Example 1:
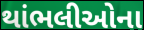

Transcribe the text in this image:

થાંભલીઓના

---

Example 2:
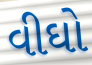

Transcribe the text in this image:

વીઘો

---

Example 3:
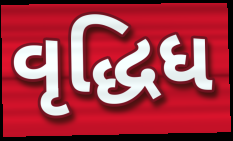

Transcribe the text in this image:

વૃદ્ધિધ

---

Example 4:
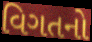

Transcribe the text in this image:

વિગતનો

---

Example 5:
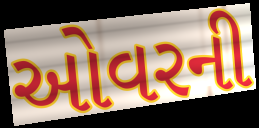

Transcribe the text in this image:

ઓવરની